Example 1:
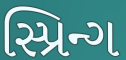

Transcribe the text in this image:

સ્પ્રિન્ગ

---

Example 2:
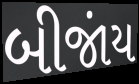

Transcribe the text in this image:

બીજાંય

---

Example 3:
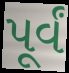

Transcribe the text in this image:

પૂર્વં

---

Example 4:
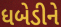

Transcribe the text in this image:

ધબેડીને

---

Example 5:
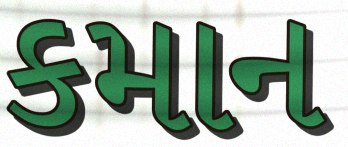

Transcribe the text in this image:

કમાન